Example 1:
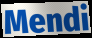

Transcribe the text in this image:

Mendi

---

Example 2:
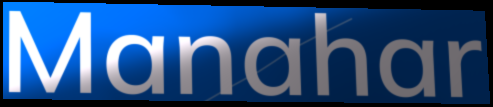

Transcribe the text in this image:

Manahar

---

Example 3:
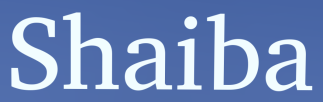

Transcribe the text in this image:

Shaiba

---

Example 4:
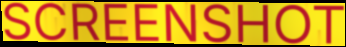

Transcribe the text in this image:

SCREENSHOT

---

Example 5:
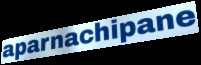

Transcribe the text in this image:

aparnachipane